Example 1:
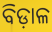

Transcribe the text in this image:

ବିଡ଼ାଳ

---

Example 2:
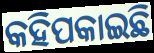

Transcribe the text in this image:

କହିପକାଇଛି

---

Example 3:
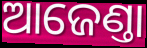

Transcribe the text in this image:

ଆଜେଣ୍ତା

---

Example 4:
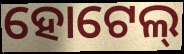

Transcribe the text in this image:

ହୋଟେଲ୍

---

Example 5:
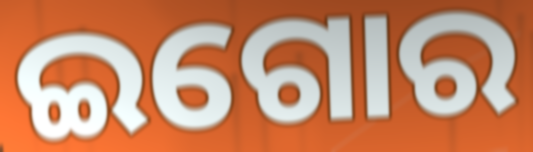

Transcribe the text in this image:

ଇଗୋର